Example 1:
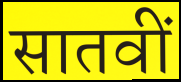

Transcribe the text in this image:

सातवीं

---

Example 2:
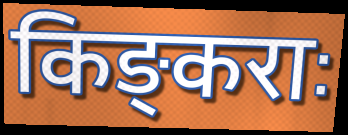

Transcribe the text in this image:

किङ्कराः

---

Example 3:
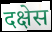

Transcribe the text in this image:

दक्षेस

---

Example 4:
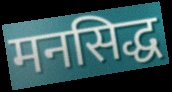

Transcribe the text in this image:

मनसिद्ध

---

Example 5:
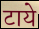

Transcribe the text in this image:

टाये